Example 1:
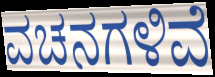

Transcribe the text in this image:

ವಚನಗಳಿವೆ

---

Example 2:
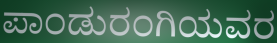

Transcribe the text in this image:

ಪಾಂಡುರಂಗಿಯವರ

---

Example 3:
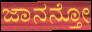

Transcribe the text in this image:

ಜಾನನ್ತೋ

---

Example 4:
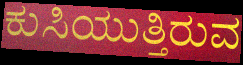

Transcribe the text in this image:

ಕುಸಿಯುತ್ತಿರುವ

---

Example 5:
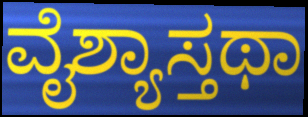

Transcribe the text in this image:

ವೈಶ್ಯಾಸ್ತಥಾ